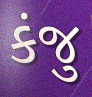
કંજુ